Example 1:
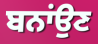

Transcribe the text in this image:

ਬਨਾਂਉਣ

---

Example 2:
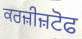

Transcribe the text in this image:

ਕਰਜ਼ੀਜ਼ਟੋਫ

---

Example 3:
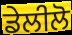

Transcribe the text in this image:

ਡੇਲੀਲੋ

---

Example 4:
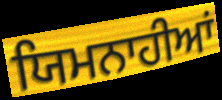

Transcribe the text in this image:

ਯਿਮਨਾਹੀਆਂ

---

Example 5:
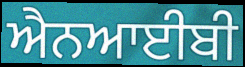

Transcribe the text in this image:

ਐਨਆਈਬੀ